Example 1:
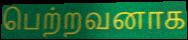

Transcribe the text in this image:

பெற்றவனாக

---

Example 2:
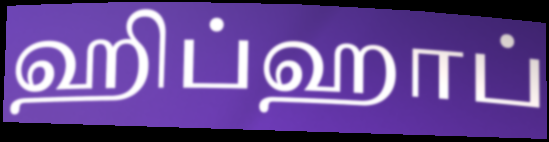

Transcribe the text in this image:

ஹிப்ஹாப்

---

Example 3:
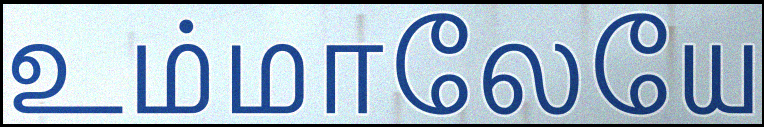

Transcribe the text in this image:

உம்மாலேயே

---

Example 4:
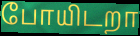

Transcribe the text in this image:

போயிடறா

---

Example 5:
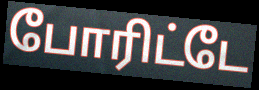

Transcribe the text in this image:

போரிட்டே